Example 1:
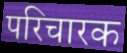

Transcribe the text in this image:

परिचारक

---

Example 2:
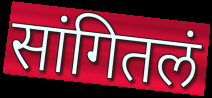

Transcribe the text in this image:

सांगितलं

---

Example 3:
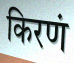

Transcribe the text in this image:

किरणं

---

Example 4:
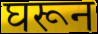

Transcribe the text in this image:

घरून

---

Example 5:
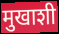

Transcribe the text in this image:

मुखाशी